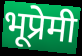
भूप्रेमी